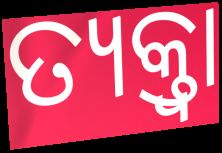
ତ୍ୟକ୍ତ୍ୱା